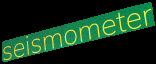
seismometer